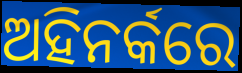
ଅହିନର୍କରେ